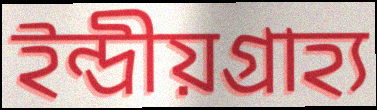
ইন্দ্রীয়গ্রাহ্য